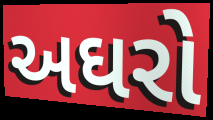
અઘરો